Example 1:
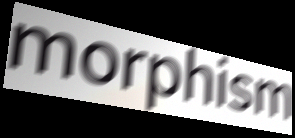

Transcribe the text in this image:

morphism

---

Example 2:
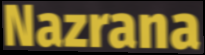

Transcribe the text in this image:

Nazrana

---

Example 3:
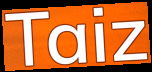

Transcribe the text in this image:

Taiz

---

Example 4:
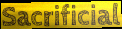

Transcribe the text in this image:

Sacrificial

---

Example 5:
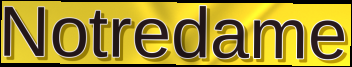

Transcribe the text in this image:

Notredame